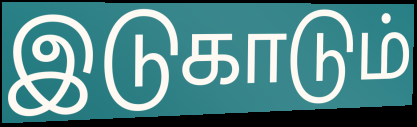
இடுகாடும்